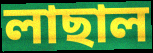
লাছাল